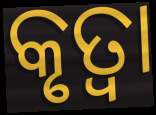
କୃତ୍ଵା